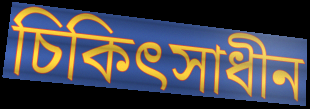
চিকিৎসাধীন